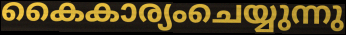
കൈകാര്യംചെയ്യുന്നു